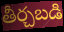
తీర్చబడి